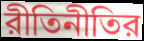
রীতিনীতির